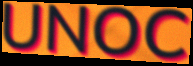
UNOC